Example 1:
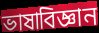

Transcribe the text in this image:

ভাষাবিজ্ঞান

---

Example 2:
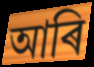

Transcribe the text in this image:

আৰি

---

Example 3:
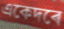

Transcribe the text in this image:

একেদৰে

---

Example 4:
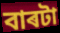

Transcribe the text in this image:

বাৰটা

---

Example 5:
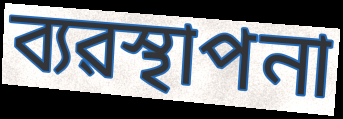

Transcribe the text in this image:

ব্যৱস্থাপনা